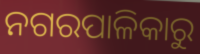
ନଗରପାଳିକାରୁ